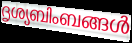
ദൃശ്യബിംബങ്ങൾ